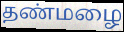
தண்மழை